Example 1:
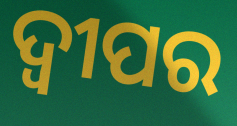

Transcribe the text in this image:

ଦ୍ଵୀପର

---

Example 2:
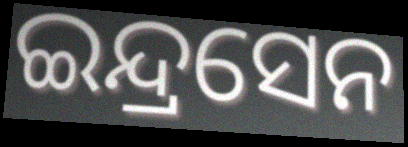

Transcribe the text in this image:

ଇନ୍ଦ୍ରସେନ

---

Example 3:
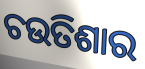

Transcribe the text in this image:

ଚଉତିଶାର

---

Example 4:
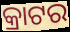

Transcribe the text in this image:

କ୍ରାଟର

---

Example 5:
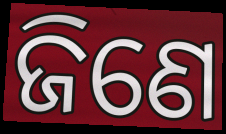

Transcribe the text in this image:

ଜିଣେ